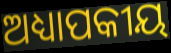
ଅଧ୍ୟାପକୀୟ